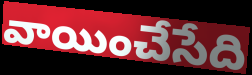
వాయించేసేది